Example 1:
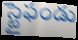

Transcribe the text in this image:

స్టైఫండు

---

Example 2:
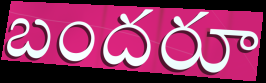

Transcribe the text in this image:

బందరూ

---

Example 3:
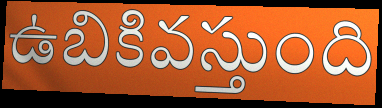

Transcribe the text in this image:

ఉబికివస్తుంది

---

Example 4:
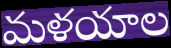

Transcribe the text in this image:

మళయాల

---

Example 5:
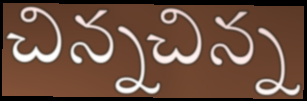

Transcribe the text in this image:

చిన్నచిన్న